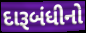
દારૂબંધીનો